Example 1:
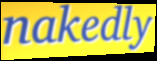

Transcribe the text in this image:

nakedly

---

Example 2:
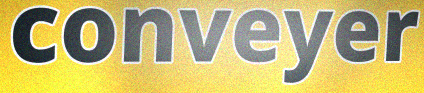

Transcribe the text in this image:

conveyer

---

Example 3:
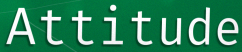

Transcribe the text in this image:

Attitude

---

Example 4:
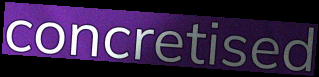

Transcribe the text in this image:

concretised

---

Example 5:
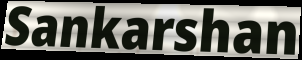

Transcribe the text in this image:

Sankarshan